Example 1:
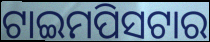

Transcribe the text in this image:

ଟାଇମପିସଟାର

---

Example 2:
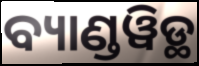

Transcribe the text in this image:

ବ୍ୟାଣ୍ଡୱିଡ୍ଥ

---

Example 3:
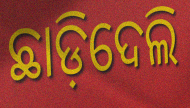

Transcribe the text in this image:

ଛାଡ଼ିଦେଲି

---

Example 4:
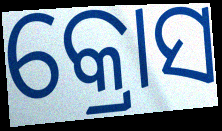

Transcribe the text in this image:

କ୍ରୋସ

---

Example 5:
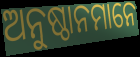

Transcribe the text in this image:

ଅନୁଷ୍ଠାନମାନେ